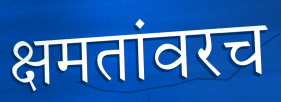
क्षमतांवरच